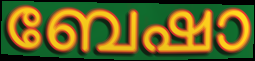
ബേഷാ